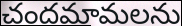
చందమామలను